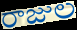
రాజుల